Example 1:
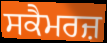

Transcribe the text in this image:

ਸਕੈਮਰਜ਼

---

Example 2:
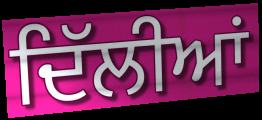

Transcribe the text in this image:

ਦਿੱਲੀਆਂ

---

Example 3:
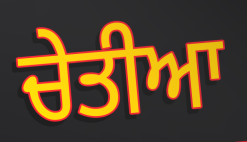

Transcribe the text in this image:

ਚੇਤੀਆ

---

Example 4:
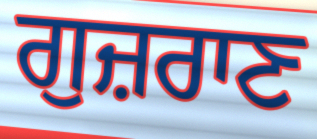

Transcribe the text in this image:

ਗੁਜ਼ਰਾਣ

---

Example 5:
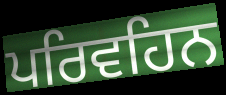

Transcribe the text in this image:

ਪਰਿਵਹਿਨ